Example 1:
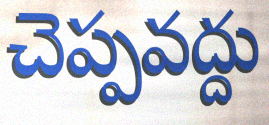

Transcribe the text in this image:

చెప్పవద్దు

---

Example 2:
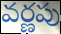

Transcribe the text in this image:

వర్ణపు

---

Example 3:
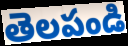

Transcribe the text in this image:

తెలపండి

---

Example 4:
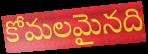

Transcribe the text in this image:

కోమలమైనది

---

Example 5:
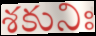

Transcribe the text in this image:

శకునిః